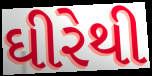
ઘીરેથી